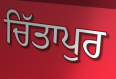
ਚਿੱਤਾਪੁਰ